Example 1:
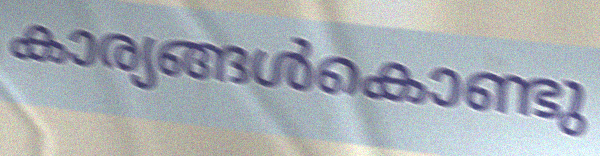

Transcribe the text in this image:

കാര്യങ്ങൾകൊണ്ടു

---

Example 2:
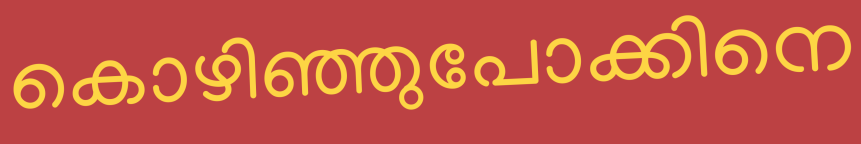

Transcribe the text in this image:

കൊഴിഞ്ഞുപോക്കിനെ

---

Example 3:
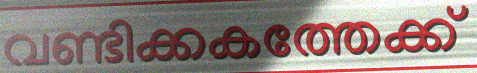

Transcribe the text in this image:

വണ്ടിക്കകത്തേക്ക്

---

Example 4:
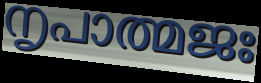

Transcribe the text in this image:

നൃപാത്മജഃ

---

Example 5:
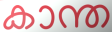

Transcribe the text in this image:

കാന്ത